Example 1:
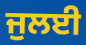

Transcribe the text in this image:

ਜੁਲਈ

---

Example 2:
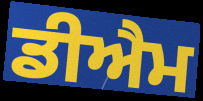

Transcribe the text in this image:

ਡੀਐਮ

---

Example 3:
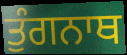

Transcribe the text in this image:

ਤੁੰਗਨਾਥ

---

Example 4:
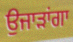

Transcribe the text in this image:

ਉਜਾੜਾਂਗਾ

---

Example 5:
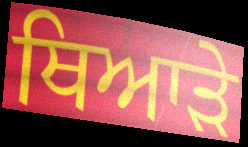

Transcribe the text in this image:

ਥਿਆੜੇ